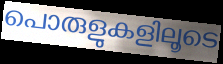
പൊരുളുകളിലൂടെ